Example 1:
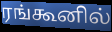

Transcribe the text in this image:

ரங்கூனில்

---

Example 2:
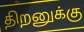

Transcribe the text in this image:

திறனுக்கு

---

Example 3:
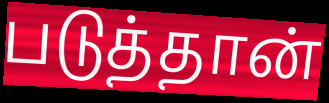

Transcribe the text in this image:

படுத்தான்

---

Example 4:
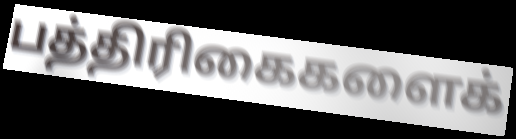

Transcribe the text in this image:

பத்திரிகைகளைக்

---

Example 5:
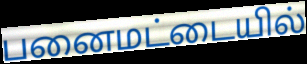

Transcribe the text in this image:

பனைமட்டையில்